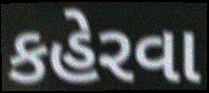
કહેરવા